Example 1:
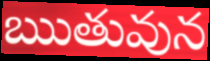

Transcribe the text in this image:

ఋతువున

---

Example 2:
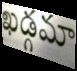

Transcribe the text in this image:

ఖడ్గమా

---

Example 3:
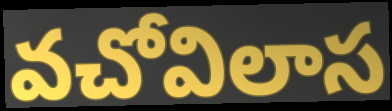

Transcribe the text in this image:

వచోవిలాస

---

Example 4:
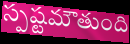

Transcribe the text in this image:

స్పష్టమౌతుంది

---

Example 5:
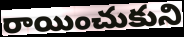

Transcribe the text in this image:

రాయించుకుని